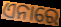
ଏନାରେ